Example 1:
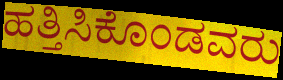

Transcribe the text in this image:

ಹತ್ತಿಸಿಕೊಂಡವರು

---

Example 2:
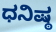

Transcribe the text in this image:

ಧನಿಷ್ಠ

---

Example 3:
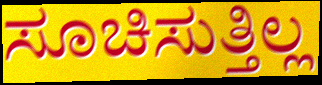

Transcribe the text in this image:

ಸೂಚಿಸುತ್ತಿಲ್ಲ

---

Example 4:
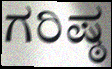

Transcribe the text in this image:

ಗರಿಷ್ಠ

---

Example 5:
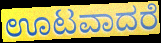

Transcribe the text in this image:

ಊಟವಾದರೆ